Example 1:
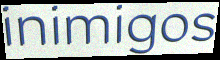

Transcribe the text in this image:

inimigos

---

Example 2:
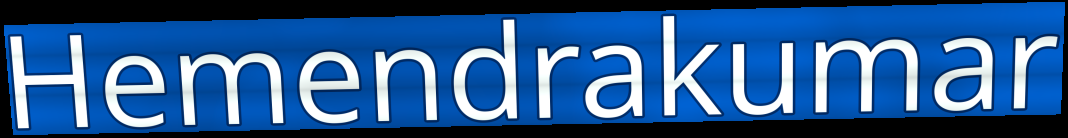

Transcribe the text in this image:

Hemendrakumar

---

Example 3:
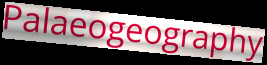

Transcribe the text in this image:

Palaeogeography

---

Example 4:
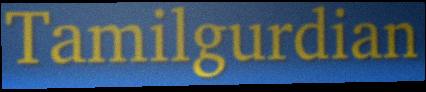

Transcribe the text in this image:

Tamilgurdian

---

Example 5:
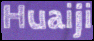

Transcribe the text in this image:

Huaiji